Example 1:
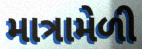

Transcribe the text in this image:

માત્રામેળી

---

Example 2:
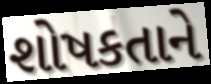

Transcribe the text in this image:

શોષકતાને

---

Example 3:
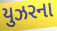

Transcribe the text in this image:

યુઝરના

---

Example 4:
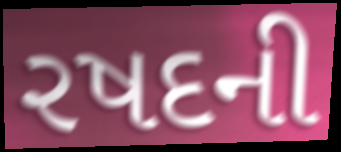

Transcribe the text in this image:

રષદની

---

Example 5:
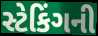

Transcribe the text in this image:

સ્ટેકિંગની